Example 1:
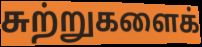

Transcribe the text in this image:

சுற்றுகளைக்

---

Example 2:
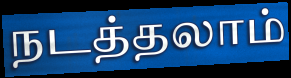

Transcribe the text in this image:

நடத்தலாம்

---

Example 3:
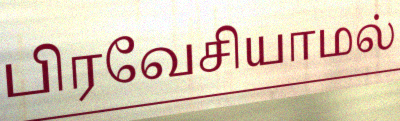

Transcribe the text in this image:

பிரவேசியாமல்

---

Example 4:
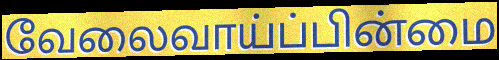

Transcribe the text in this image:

வேலைவாய்ப்பின்மை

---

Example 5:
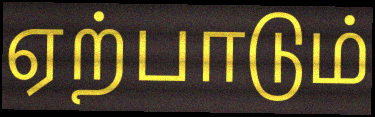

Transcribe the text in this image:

ஏற்பாடும்